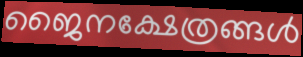
ജൈനക്ഷേത്രങ്ങൾ